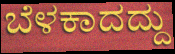
ಬೆಳಕಾದದ್ದು